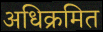
अधिक्रमित